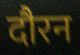
दौरन